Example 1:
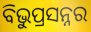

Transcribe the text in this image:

ବିଭୁପ୍ରସନ୍ନର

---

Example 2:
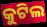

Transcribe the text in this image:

କୁଟିଲ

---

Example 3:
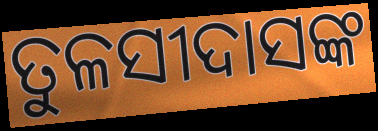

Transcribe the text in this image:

ତୁଳସୀଦାସଙ୍କ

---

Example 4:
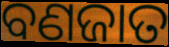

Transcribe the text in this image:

ବଣଜାତ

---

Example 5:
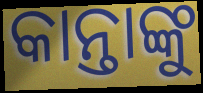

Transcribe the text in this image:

କାନ୍ତାଙ୍କୁ